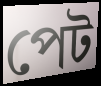
পেট